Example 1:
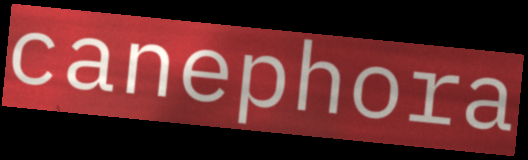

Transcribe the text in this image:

canephora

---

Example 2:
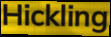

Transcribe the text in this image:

Hickling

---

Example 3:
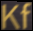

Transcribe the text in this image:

Kf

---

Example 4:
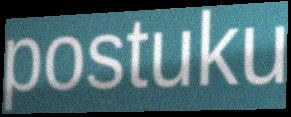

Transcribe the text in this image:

postuku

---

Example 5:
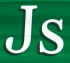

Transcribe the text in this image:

Js